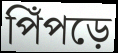
পিঁপড়ে